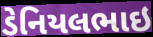
ડેનિયલભાઇ